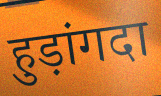
हुड़ांगदा